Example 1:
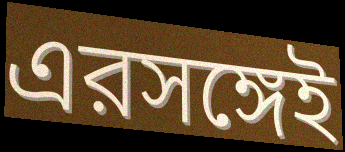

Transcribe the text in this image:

এরসঙ্গেই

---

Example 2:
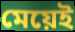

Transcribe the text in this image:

মেয়েই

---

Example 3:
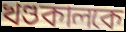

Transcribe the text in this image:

খণ্ডকালকে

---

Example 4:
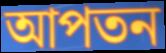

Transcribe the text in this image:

আপতন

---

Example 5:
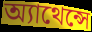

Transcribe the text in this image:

অ্যাথেন্সে